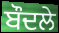
ਬੌਦਲੇ